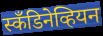
स्कँडिनेव्हियन